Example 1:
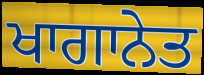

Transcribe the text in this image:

ਖਾਗਾਨੇਤ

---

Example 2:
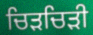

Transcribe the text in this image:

ਚਿੜਚਿੜੀ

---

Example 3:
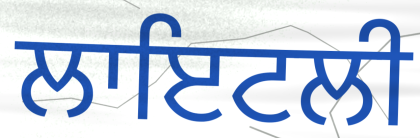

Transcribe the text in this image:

ਲਾਇਟਲੀ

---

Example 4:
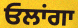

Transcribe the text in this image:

ਓਲਾਂਗਾ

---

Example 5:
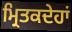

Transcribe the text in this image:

ਮ੍ਰਿਤਕਦੇਹਾਂ